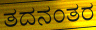
ತದನಂತರ